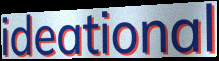
ideational